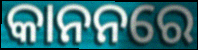
କାନନରେ